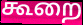
கூறை